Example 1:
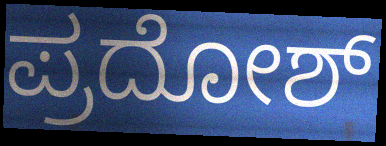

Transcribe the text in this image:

ಪ್ರದೋಶ್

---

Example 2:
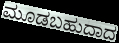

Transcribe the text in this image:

ಮೂಡಬಹುದಾದ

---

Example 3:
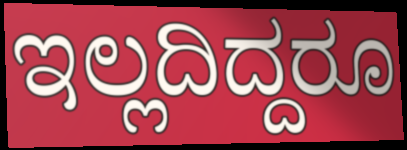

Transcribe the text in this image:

ಇಲ್ಲದಿದ್ದರೂ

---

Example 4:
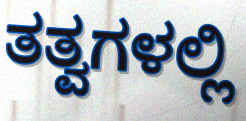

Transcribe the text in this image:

ತತ್ವಗಳಲ್ಲಿ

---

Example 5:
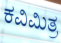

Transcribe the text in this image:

ಕವಿಮಿತ್ರ